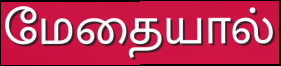
மேதையால்